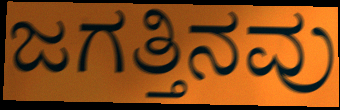
ಜಗತ್ತಿನವು